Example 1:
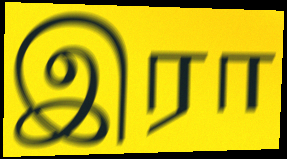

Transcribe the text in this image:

இரா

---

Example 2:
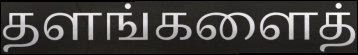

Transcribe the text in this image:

தளங்களைத்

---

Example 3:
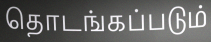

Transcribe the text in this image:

தொடங்கப்படும்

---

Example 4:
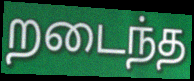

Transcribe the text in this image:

றடைந்த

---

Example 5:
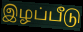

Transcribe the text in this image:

இழப்பீடு